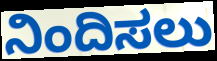
ನಿಂದಿಸಲು